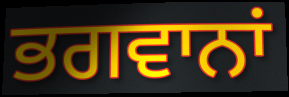
ਭਗਵਾਨਾਂ